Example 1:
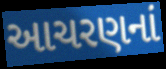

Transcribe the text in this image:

આચરણનાં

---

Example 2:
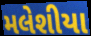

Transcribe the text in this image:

મલેશીયા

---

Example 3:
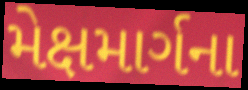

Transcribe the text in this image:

મેક્ષમાર્ગના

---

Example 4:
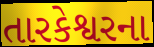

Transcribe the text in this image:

તારકેશ્વરના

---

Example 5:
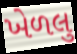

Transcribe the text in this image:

ખેળલુ